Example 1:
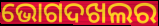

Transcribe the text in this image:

ଭୋଗଦଖଲର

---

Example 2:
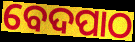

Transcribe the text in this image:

ବେଦପାଠ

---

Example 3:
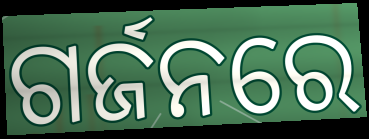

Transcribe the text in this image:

ଗର୍ଜନରେ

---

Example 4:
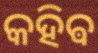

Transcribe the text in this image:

କହିଵ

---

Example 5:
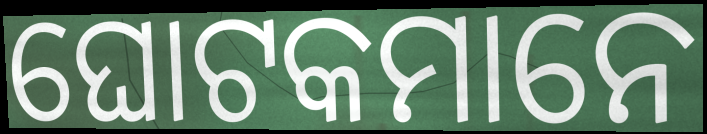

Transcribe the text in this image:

ଘୋଟକମାନେ